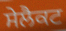
ਸੇਲੈਕਟ